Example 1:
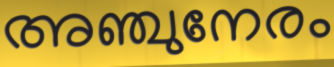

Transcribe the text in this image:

അഞ്ചുനേരം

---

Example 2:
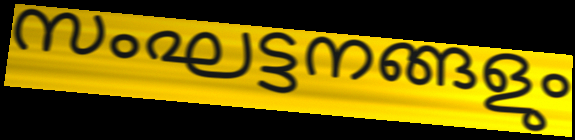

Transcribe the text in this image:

സംഘട്ടനങ്ങളും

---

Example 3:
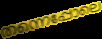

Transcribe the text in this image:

തന്നെപ്പോലെ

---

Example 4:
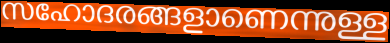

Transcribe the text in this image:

സഹോദരങ്ങളാണെന്നുള്ള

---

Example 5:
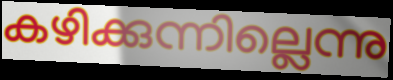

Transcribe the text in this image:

കഴിക്കുന്നില്ലെന്നു